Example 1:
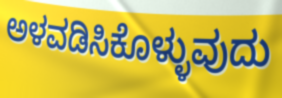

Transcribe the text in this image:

ಅಳವಡಿಸಿಕೊಳ್ಳುವುದು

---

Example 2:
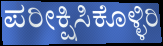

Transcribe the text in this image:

ಪರೀಕ್ಷಿಸಿಕೊಳ್ಳಿರಿ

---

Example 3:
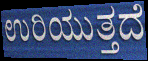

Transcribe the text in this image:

ಉರಿಯುತ್ತದೆ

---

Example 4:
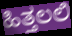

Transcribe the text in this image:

ಹಿತ್ತಲಲಿ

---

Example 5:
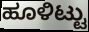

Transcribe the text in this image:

ಹೂಳಿಟ್ಟು